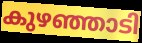
കുഴഞ്ഞാടി